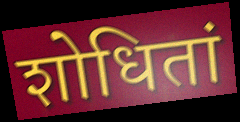
शोधितां